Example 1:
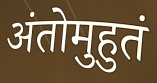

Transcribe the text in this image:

अंतोमुहुतं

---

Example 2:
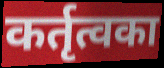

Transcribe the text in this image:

कर्तृत्वका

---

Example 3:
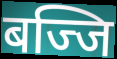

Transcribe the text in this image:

बज्जि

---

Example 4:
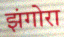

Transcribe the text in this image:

झंगोरा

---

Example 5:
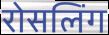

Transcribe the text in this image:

रोसलिंग